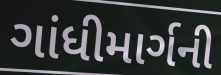
ગાંધીમાર્ગની